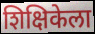
शिक्षिकेला